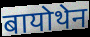
बायोथेन